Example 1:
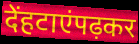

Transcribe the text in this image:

देंहटाएंपढ़कर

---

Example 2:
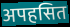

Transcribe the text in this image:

अपहसित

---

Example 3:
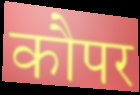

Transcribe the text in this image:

कौपर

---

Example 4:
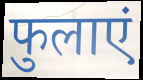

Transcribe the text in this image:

फुलाएं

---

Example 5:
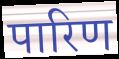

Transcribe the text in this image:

पारिण